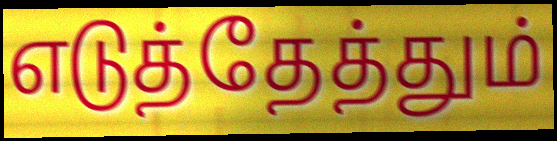
எடுத்தேத்தும்